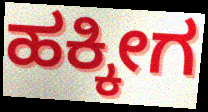
ಹಕ್ಕೀಗ